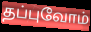
தப்புவோம்